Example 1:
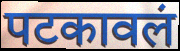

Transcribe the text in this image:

पटकावलं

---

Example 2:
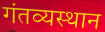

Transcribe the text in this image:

गंतव्यस्थान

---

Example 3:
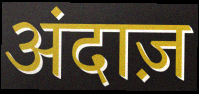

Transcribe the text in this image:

अंदाज़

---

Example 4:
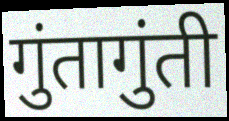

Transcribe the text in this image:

गुंतागुंती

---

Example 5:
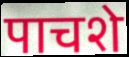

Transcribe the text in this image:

पाचशे